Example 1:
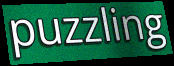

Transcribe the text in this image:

puzzling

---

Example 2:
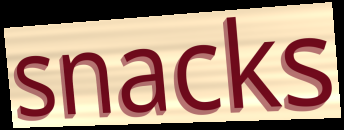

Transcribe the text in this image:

snacks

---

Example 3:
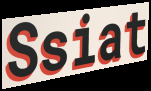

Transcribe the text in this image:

Ssiat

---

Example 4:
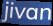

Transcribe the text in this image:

jivan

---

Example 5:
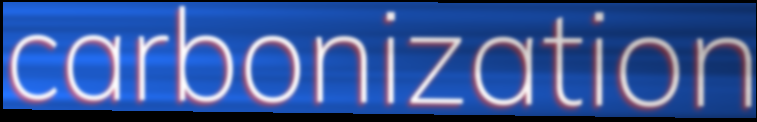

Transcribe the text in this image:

carbonization